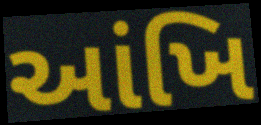
આંખિ